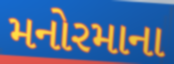
મનોરમાના